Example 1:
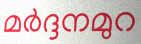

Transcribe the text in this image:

മർദ്ദനമുറ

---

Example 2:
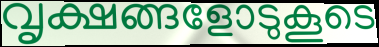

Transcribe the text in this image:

വൃക്ഷങ്ങളോടുകൂടെ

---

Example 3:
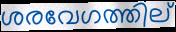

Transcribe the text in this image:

ശരവേഗത്തില്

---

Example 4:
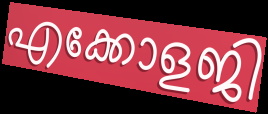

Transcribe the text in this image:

എക്കോളജി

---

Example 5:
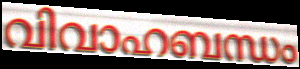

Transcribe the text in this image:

വിവാഹബന്ധം